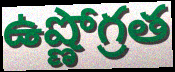
ఉష్ణోగ్రత